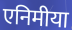
एनिमीया